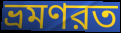
ভ্রমণরত